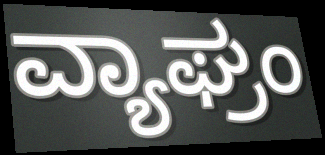
ವ್ಯಾಘ್ರಂ